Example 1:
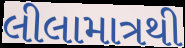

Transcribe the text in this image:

લીલામાત્રથી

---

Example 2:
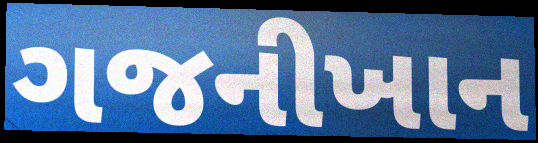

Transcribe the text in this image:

ગજનીખાન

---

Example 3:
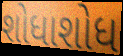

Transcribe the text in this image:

શોધાશોધ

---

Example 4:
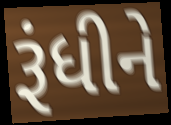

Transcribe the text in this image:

રૂંધીને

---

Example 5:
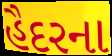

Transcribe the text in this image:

હૈદરના